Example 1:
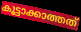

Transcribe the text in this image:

കൂട്ടാക്കാത്തത്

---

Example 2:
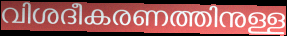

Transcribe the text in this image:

വിശദീകരണത്തിനുള്ള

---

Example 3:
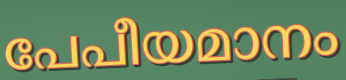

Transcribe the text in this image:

പേപീയമാനം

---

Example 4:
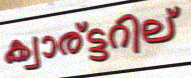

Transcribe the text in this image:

ക്വാര്ട്ടറില്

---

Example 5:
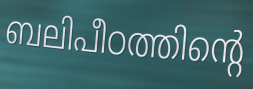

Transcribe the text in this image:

ബലിപീഠത്തിന്റെ